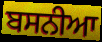
ਬਸਨੀਆ